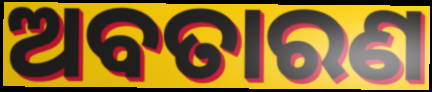
ଅବତାରଣ